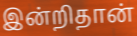
இன்றிதான்